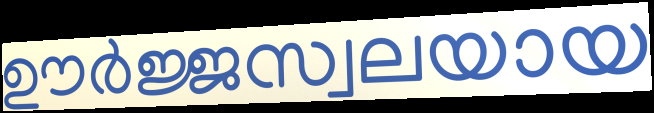
ഊർജ്ജസ്വലയായ